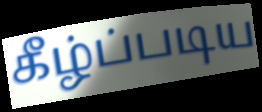
கீழ்ப்படிய